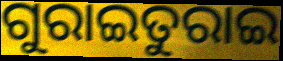
ଗୁରାଇତୁରାଇ